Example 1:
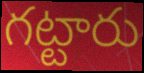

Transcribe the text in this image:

గట్టారు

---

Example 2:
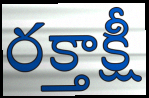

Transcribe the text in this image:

రక్తాక్షీ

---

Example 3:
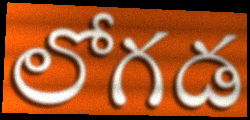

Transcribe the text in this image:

లోగడ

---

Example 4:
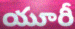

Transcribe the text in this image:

యూరీ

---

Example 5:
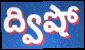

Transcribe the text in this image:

ద్విషో